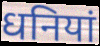
धनियां